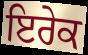
ਇਰੇਕ